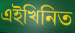
এইখিনিত